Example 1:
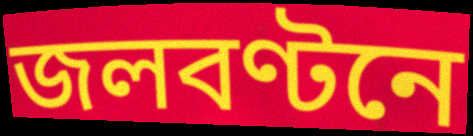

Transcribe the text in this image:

জলবণ্টনে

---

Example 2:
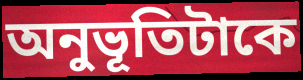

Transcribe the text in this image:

অনুভূতিটাকে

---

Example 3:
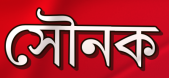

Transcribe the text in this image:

সৌনক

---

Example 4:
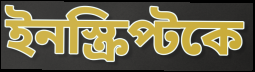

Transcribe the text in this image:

ইনস্ক্রিপ্টকে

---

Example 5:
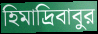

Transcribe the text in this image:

হিমাদ্রিবাবুর